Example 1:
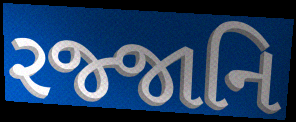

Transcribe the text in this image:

રજ્જાનિ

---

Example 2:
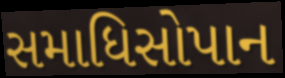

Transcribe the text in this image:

સમાધિસોપાન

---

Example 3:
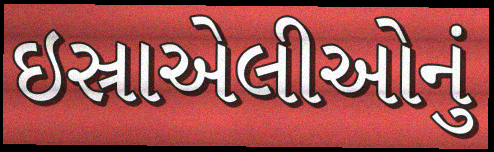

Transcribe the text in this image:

ઇસ્રાએલીઓનું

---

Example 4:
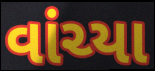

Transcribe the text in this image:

વાંચ્યા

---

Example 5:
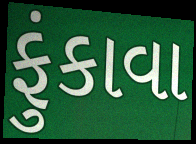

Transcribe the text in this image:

ફુંકાવા